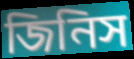
জিনিস